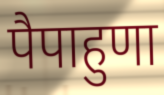
पैपाहुणा